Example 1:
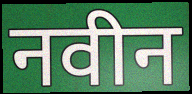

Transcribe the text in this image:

नवीन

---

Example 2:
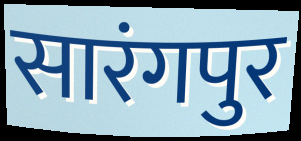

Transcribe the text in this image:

सारंगपुर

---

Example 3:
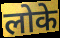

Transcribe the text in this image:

लोके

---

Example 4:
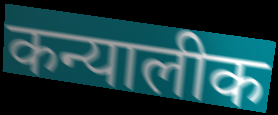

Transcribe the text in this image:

कन्यालीक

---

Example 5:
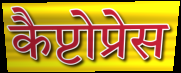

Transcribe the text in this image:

कैप्टोप्रेस